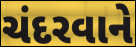
ચંદરવાને